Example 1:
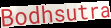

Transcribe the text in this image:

Bodhsutra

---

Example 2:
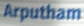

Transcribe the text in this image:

Arputham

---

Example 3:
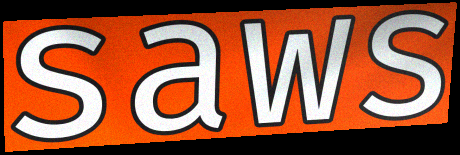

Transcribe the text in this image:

saws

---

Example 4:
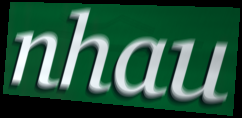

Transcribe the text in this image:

nhau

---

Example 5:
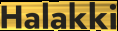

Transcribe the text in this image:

Halakki